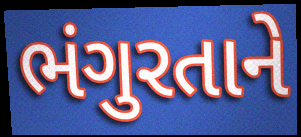
ભંગુરતાને